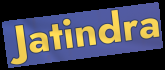
Jatindra